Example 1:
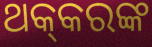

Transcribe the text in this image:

ଥକ୍‌କରଙ୍କ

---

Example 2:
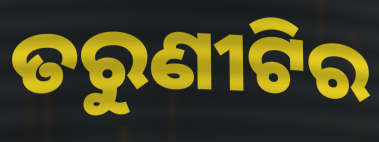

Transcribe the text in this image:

ତରୁଣୀଟିର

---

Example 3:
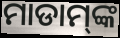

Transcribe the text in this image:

ମାଡାମ୍‌ଙ୍କ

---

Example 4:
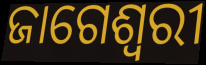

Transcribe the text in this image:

ଜାଗେଶ୍ୱରୀ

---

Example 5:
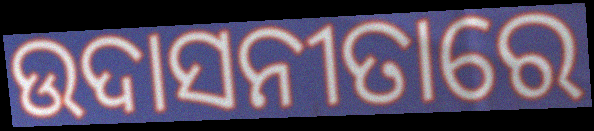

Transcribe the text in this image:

ଉଦାସନୀତାରେ